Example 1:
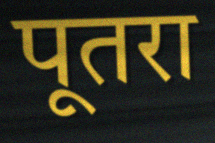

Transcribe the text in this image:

पूतरा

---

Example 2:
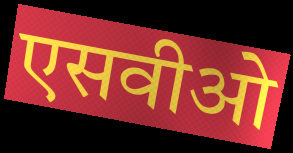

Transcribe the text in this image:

एसवीओ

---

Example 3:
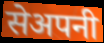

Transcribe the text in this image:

सेअपनी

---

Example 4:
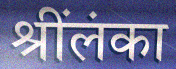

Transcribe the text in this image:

श्रींलंका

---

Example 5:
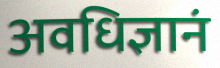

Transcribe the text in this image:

अवधिज्ञानं